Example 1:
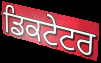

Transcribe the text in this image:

ਡਿਕਟੇਟਰ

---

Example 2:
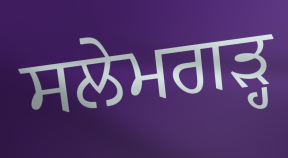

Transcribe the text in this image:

ਸਲੇਮਗੜ੍ਹ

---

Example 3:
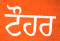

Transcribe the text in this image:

ਟੌਹਰ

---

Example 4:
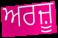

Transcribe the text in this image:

ਅਰਜ਼ੂ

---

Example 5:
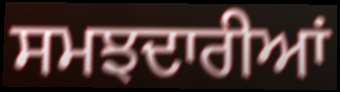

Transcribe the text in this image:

ਸਮਝਦਾਰੀਆਂ